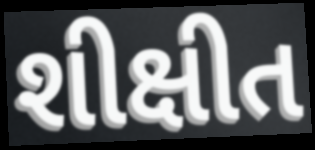
શીક્ષીત